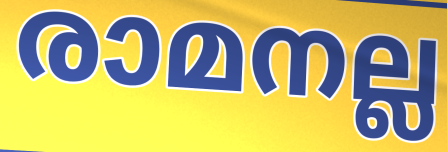
രാമനല്ല